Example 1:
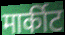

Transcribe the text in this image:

मार्कीट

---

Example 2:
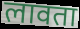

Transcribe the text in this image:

लावता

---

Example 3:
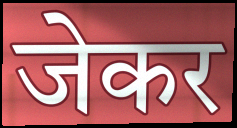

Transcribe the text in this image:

जेकर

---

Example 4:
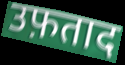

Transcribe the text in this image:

उफ़ताद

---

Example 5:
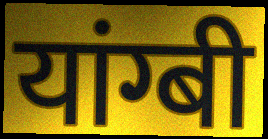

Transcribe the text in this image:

यांग्बी